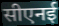
सीएनई